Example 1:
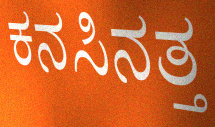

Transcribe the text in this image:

ಕನಸಿನತ್ತ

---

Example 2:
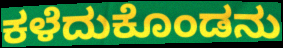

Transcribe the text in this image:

ಕಳೆದುಕೊಂಡನು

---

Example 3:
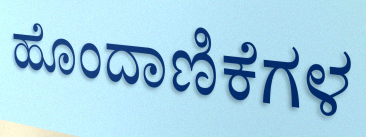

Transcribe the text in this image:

ಹೊಂದಾಣಿಕೆಗಳ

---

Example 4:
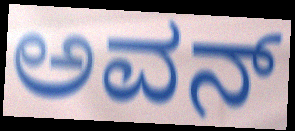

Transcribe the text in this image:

ಅವನ್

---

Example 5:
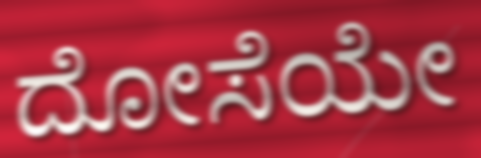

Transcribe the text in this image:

ದೋಸೆಯೇ